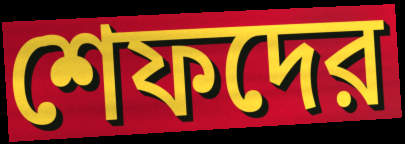
শেফদের